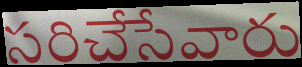
సరిచేసేవారు